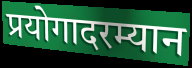
प्रयोगादरम्यान